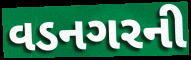
વડનગરની